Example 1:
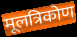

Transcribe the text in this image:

मूलत्रिकोण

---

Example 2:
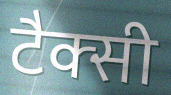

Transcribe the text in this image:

टैक्‍सी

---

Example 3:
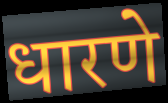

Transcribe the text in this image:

धारणे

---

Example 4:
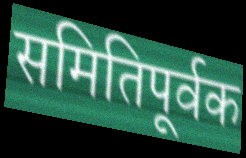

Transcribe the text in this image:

समितिपूर्वक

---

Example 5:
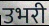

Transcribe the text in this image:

उभरी